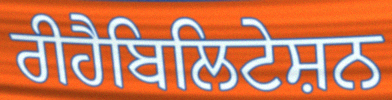
ਰੀਹੈਬਿਲਿਟੇਸ਼ਨ